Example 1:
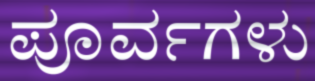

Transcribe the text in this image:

ಪೂರ್ವಗಳು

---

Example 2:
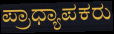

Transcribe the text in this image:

ಪ್ರಾಧ್ಯಾಪಕರು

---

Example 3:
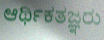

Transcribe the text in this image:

ಆರ್ಥಿಕತಜ್ಞರು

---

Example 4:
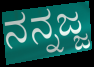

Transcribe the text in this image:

ನನ್ನಜ್ಜ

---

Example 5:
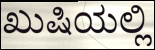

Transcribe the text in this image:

ಖುಷಿಯಲ್ಲಿ